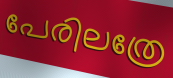
പേരിലത്രേ